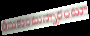
తీసుకుంటున్నారంటూ